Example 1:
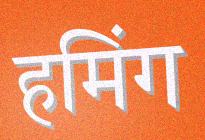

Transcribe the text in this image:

हमिंग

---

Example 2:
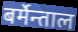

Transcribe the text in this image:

बर्मेन्ताल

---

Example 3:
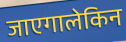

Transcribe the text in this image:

जाएगालेकिन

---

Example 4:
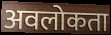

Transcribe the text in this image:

अवलोकता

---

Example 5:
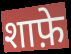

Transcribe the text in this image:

शाफ़े